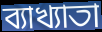
ব্যাখ্যাতা